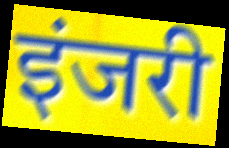
इंजरी